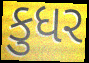
કુધર